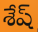
శేష్